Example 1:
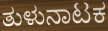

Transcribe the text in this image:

ತುಳುನಾಟಕ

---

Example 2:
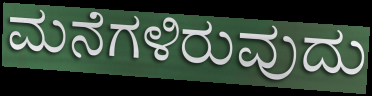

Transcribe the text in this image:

ಮನೆಗಳಿರುವುದು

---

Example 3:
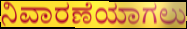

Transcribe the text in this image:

ನಿವಾರಣೆಯಾಗಲು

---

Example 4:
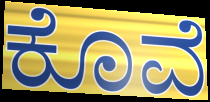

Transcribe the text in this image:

ಕೊವೆ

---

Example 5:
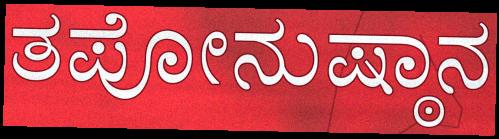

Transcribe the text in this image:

ತಪೋನುಷ್ಠಾನ